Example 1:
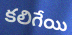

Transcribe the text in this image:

కలిగేయి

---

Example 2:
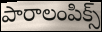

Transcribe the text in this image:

పారాలంపిక్స్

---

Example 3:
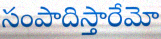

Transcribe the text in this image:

సంపాదిస్తారేమో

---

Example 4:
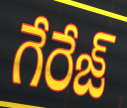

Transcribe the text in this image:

గేరేజ్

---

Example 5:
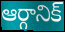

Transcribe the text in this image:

ఆర్గానిక్